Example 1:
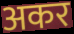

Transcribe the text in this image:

अकर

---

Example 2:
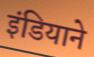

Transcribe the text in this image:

इंडियाने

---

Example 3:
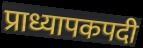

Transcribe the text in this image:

प्राध्यापकपदी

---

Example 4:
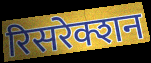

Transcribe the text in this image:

रिसरेक्शन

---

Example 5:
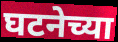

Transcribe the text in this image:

घटनेच्या